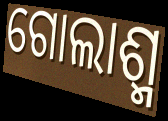
ଗୋଲାଶ୍ମ